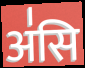
अ॑सि